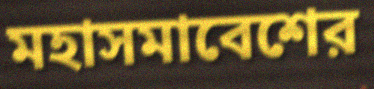
মহাসমাবেশের